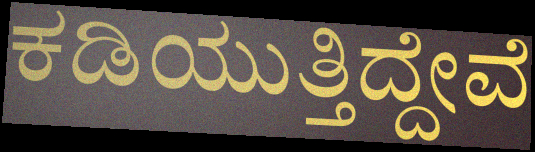
ಕಡಿಯುತ್ತಿದ್ದೇವೆ